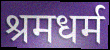
श्रमधर्म